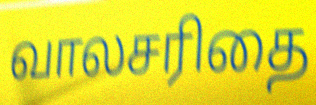
வாலசரிதை